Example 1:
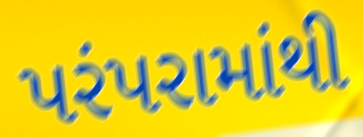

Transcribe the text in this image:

પરંપરામાંથી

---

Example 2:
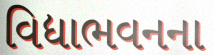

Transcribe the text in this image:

વિદ્યાભવનના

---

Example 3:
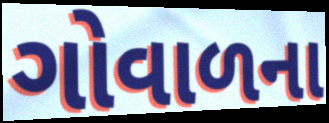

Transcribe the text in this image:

ગોવાળના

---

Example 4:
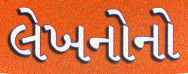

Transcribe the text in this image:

લેખનોનો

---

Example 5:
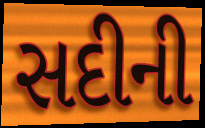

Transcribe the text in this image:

સદીની